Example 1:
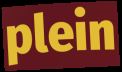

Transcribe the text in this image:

plein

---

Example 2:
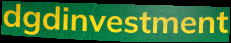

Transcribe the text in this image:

dgdinvestment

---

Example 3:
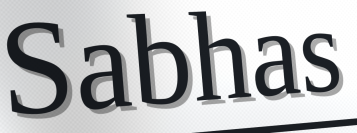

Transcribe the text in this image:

Sabhas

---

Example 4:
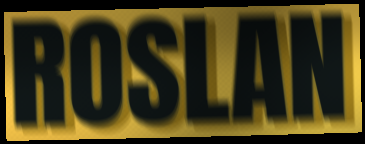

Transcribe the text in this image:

ROSLAN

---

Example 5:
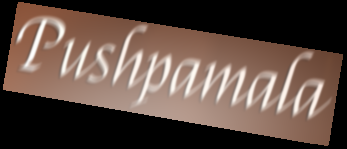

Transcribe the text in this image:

Pushpamala